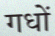
गधों